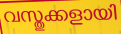
വസ്തുക്കളായി